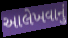
આલેખવાનું